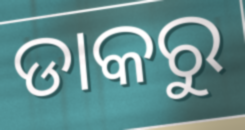
ଡାକରୁ